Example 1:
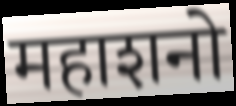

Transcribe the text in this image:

महाशनो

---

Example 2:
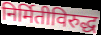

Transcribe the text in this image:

निर्मितीविरुद्ध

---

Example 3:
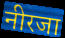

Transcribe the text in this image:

नीरजा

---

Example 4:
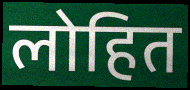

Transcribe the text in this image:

लोहित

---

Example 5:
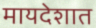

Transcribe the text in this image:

मायदेशात